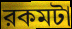
রকমটা